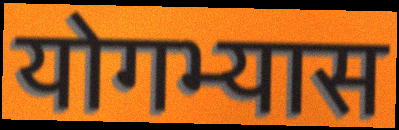
योगभ्यास